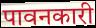
पावनकारी